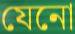
যেনো